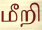
மீறி